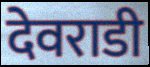
देवराडी